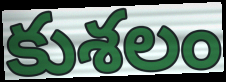
కుశలం